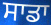
ਸਾਡਾ